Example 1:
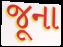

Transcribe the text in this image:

જૂના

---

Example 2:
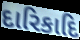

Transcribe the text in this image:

દારિકાદિ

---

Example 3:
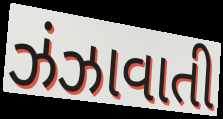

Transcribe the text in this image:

ઝંઝાવાતી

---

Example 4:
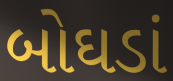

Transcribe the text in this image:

બોઘડાં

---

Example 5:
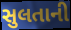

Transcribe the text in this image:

સુલતાની